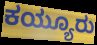
ಕಯ್ಯೂರು